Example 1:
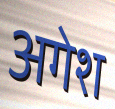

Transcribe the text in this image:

अगेश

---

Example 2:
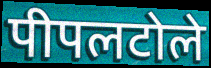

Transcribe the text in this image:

पीपलटोले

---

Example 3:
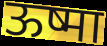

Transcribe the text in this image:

ऊष्‍मा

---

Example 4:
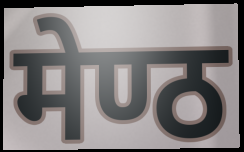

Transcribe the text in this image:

मेण्ठ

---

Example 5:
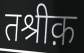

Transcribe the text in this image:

तश्रीक़